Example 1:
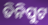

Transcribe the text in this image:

ତିନିପୁଟ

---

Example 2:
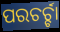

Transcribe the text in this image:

ପରଚର୍ଚ୍ଚା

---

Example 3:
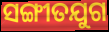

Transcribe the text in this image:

ସଙ୍ଗୀତଯୁଗ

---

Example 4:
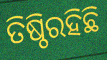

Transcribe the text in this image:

ତିଷ୍ଠିରହିଛି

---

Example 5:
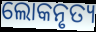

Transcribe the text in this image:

ଲୋକନୃତ୍ଯ